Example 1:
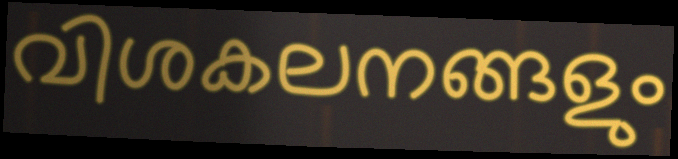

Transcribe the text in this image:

വിശകലനങ്ങളും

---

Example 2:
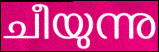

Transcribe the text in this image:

ചീയുന്നു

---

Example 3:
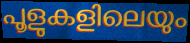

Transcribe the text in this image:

പൂളുകളിലെയും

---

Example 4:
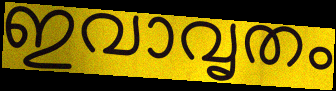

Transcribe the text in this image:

ഇവാവൃതം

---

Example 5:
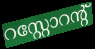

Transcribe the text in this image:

റസ്റ്റോറന്റ്